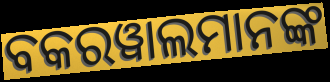
ବକରୱାଲମାନଙ୍କ